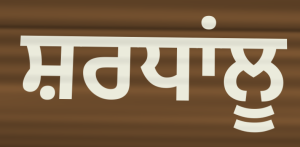
ਸ਼ਰਧਾਂਲੂ